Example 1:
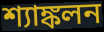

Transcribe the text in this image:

শ্যাঙ্কলন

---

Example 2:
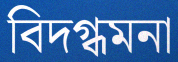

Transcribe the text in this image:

বিদগ্ধমনা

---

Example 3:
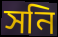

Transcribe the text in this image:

সনি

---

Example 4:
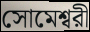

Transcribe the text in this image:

সোমেশ্বরী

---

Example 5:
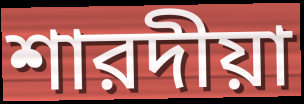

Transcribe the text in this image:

শারদীয়া